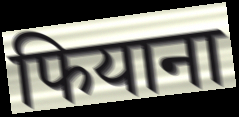
फियाना